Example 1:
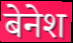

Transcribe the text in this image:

बेनेश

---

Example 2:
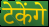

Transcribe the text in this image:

टेकेंगे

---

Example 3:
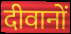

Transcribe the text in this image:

दीवानों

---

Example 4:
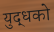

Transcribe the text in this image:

युद्धको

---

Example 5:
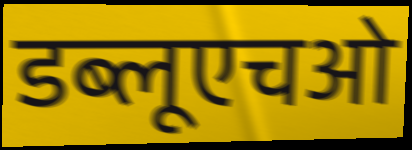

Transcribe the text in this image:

डब्लूएचओ